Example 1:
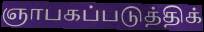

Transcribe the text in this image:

ஞாபகப்படுத்திக்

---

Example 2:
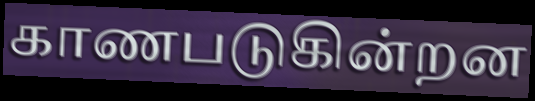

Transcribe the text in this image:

காணபடுகின்றன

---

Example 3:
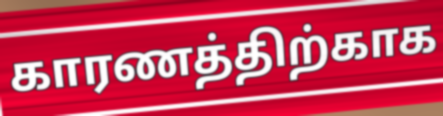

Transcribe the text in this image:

காரணத்திற்காக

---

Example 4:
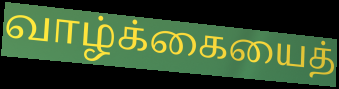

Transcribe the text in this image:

வாழ்க்கையைத்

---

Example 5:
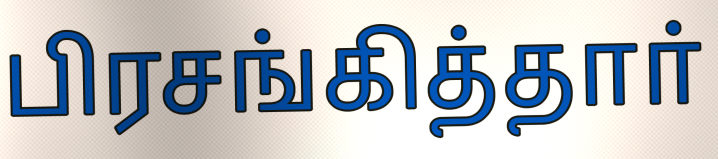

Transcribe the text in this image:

பிரசங்கித்தார்